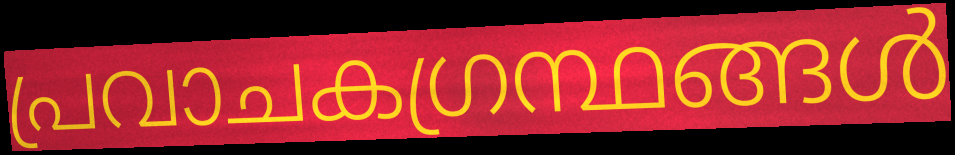
പ്രവാചകഗ്രന്ഥങ്ങൾ